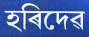
হৰিদেৱ